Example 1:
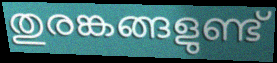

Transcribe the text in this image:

തുരങ്കങ്ങളുണ്ട്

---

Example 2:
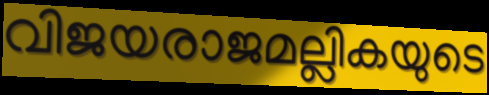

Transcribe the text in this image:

വിജയരാജമല്ലികയുടെ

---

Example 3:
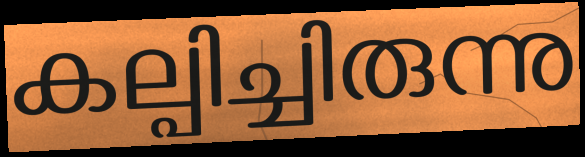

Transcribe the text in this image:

കല്പിച്ചിരുന്നു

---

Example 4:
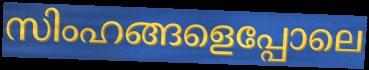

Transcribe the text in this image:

സിംഹങ്ങളെപ്പോലെ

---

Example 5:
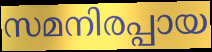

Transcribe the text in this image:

സമനിരപ്പായ